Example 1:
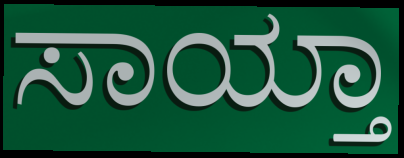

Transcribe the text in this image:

ಸಾಯ್ತಾ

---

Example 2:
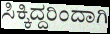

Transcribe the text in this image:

ಸಿಕ್ಕಿದ್ದರಿಂದಾಗಿ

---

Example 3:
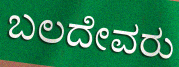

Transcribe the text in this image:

ಬಲದೇವರು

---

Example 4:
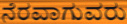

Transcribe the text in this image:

ನೆರವಾಗುವರು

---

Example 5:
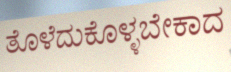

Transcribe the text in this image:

ತೊಳೆದುಕೊಳ್ಳಬೇಕಾದ